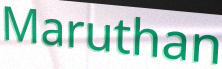
Maruthan